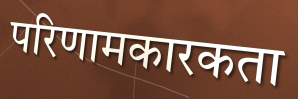
परिणामकारकता